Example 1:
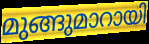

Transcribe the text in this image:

മുങ്ങുമാറായി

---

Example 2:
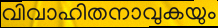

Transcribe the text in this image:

വിവാഹിതനാവുകയും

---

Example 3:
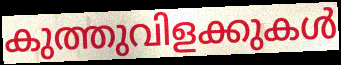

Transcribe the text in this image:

കുത്തുവിളക്കുകൾ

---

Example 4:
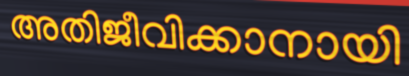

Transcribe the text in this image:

അതിജീവിക്കാനായി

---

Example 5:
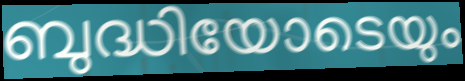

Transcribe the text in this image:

ബുദ്ധിയോടെയും